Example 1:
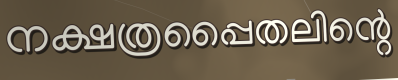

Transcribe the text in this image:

നക്ഷത്രപ്പൈതലിന്റെ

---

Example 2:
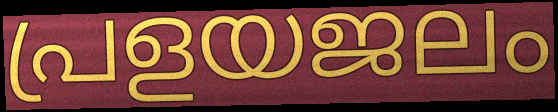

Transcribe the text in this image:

പ്രളയജലം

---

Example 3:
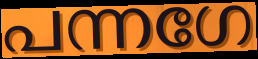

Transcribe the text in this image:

പന്നഗേ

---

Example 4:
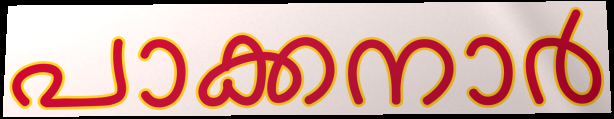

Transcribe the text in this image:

പാക്കനാർ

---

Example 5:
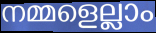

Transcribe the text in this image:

നമ്മളെല്ലാം